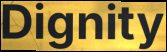
Dignity